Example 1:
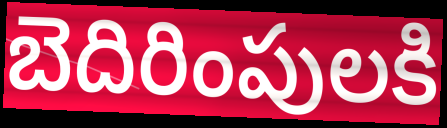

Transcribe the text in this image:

బెదిరింపులకి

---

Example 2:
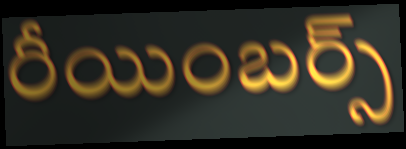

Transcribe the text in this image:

రీయింబర్స్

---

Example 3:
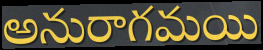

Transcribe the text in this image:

అనురాగమయి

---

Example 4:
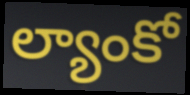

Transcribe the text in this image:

ల్యాంకో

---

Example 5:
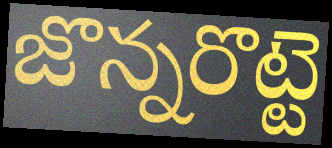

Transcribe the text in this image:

జొన్నరొట్టె